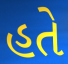
હતે